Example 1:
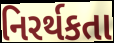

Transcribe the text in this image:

નિરર્થકતા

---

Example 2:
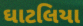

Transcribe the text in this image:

ઘાટલિયા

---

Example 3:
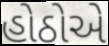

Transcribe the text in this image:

હોઠોએ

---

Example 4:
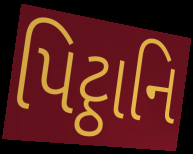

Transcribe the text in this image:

પિટ્ઠાનિ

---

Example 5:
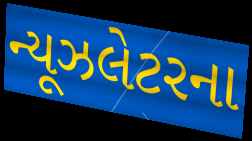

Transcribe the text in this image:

ન્યૂઝલેટરના